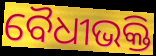
ବୈଧୀଭକ୍ତି